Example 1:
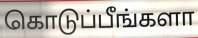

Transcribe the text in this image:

கொடுப்பீங்களா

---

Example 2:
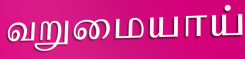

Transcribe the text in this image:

வறுமையாய்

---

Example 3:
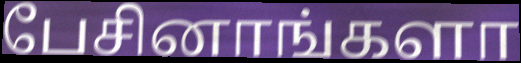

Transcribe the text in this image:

பேசினாங்களா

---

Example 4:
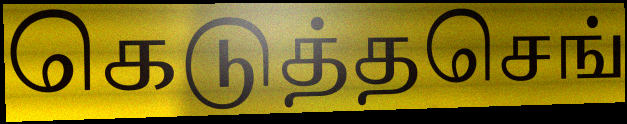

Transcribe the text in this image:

கெடுத்தசெங்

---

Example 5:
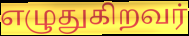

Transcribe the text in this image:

எழுதுகிறவர்